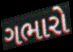
ગભારો